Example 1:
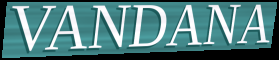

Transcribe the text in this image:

VANDANA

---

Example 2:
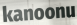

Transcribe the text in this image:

kanoonu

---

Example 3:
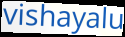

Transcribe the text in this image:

vishayalu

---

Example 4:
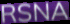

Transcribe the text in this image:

RSNA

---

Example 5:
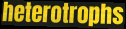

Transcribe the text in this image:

heterotrophs